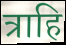
त्राहि